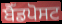
ਬੈੱਡਪੋਸਟ